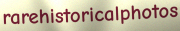
rarehistoricalphotos